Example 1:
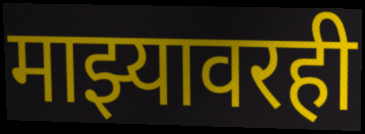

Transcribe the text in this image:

माझ्यावरही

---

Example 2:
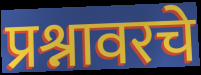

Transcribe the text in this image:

प्रश्नावरचे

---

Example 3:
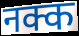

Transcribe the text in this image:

नक्क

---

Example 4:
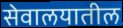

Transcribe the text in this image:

सेवालयातील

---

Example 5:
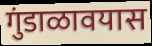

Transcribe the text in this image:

गुंडाळावयास